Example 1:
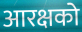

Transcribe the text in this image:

आरक्षको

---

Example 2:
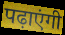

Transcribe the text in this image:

पढ़ाएंगी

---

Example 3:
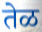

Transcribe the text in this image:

तेळ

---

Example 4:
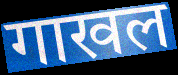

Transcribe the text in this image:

गाखल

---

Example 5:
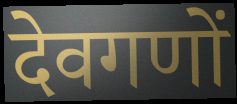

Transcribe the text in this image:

देवगणों